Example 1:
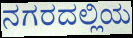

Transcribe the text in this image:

ನಗರದಲ್ಲಿಯ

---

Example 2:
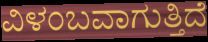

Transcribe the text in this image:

ವಿಳಂಬವಾಗುತ್ತಿದೆ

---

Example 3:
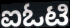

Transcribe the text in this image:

ಐಓಟಿ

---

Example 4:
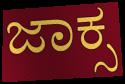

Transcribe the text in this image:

ಜಾಕ್ಸ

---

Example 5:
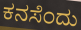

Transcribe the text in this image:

ಕನಸೆಂದು